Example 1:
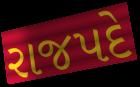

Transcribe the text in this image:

રાજપદે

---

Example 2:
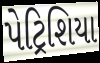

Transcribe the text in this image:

પેટ્રિશિયા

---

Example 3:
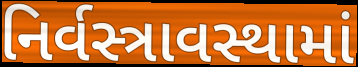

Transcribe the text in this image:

નિર્વસ્ત્રાવસ્થામાં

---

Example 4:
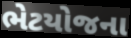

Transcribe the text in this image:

ભેટયોજના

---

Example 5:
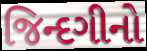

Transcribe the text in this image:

જિન્દગીનો